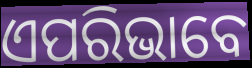
ଏପରିଭାବେ